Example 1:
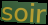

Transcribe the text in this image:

soir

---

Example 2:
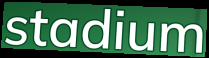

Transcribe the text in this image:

stadium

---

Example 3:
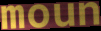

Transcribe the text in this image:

moun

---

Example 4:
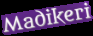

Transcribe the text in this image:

Madikeri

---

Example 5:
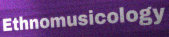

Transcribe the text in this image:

Ethnomusicology